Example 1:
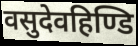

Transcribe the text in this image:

वसुदेवहिण्डि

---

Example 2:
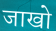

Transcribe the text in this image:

जाखो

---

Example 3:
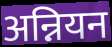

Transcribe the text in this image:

अन्नियन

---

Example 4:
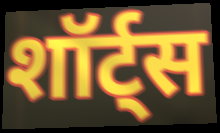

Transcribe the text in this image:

शॉर्ट्स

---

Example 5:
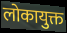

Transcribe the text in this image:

लोकायुक्त